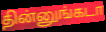
தின்னுங்கடா